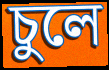
চুলে